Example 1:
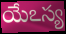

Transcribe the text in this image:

యేఽస్య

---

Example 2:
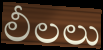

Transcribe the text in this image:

లీలలు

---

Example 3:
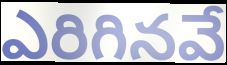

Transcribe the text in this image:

ఎరిగినవే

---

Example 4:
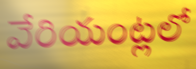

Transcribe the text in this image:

వేరియంట్లలో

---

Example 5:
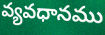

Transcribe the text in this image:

వ్యవధానము